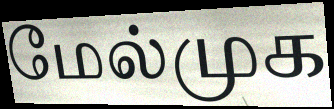
மேல்முக